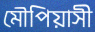
মৌপিয়াসী